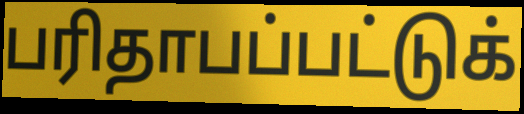
பரிதாபப்பட்டுக்